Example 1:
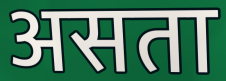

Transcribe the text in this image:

असता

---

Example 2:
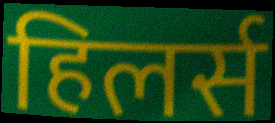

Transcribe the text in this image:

हिलर्स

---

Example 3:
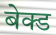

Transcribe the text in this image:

बेक्ड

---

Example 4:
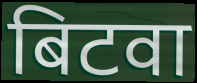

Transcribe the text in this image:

बिटवा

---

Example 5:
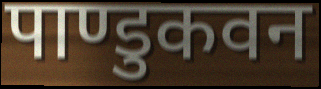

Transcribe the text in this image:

पाण्डुकवन